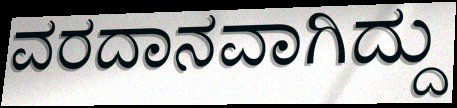
ವರದಾನವಾಗಿದ್ದು